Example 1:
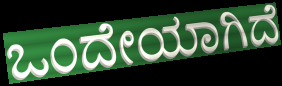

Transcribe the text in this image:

ಒಂದೇಯಾಗಿದೆ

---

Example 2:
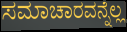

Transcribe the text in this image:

ಸಮಾಚಾರವನ್ನೆಲ್ಲ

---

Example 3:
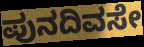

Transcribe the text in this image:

ಪುನದಿವಸೇ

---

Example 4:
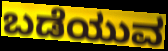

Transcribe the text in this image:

ಬಡೆಯುವ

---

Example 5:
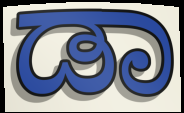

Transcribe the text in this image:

ಡಾ